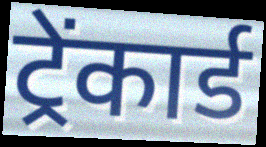
ट्रेंकार्ड